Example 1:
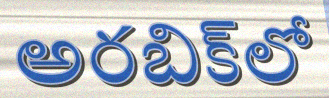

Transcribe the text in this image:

అరబిక్‌లో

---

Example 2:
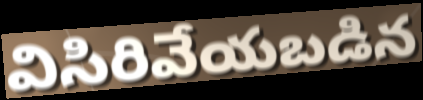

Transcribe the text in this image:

విసిరివేయబడిన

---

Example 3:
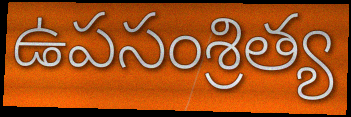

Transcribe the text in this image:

ఉపసంశ్రిత్య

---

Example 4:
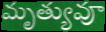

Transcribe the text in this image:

మృత్యువూ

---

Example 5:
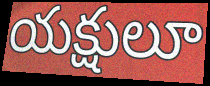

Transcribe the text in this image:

యక్షులూ